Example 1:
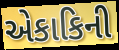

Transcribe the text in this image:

એકાકિની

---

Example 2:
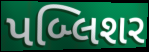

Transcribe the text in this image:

પબ્લિશર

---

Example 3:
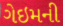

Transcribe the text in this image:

ગેઇમની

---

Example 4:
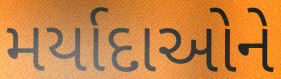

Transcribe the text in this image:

મર્યાદાઓને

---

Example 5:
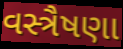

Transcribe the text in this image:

વસ્ત્રૈષણા